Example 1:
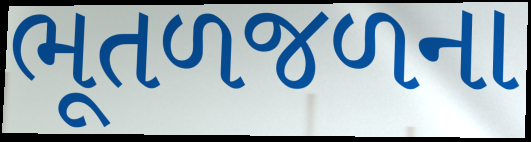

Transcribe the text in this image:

ભૂતળજળના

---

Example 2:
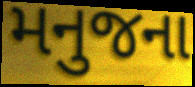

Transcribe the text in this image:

મનુજના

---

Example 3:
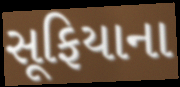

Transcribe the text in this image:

સૂફિયાના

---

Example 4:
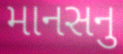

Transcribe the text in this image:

માનસનુ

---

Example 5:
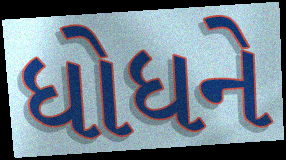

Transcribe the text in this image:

ધોધને